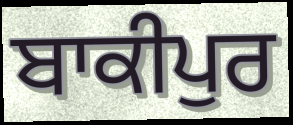
ਬਾਕੀਪੁਰ